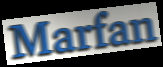
Marfan